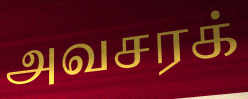
அவசரக்